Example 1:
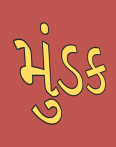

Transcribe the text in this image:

મુંડક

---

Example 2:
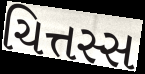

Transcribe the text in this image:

ચિત્તસ્સ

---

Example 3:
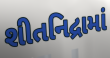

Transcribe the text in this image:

શીતનિદ્રામાં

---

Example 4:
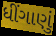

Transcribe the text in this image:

ધીંગાણું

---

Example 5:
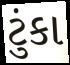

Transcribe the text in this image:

ટુંકા